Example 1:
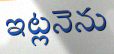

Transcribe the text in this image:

ఇట్లనెను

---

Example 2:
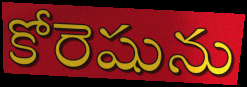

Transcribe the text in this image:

కోరెషును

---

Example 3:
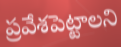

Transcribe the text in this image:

ప్రవేశపెట్టాలని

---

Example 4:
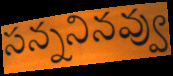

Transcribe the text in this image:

సన్ననినవ్వు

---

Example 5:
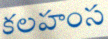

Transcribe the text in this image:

కలహంస